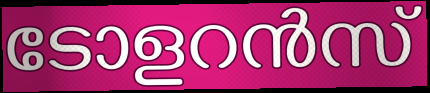
ടോളറൻസ്